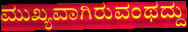
ಮುಖ್ಯವಾಗಿರುವಂಥದ್ದು